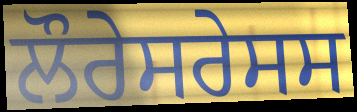
ਲੌਰੇਸਰੇਸਸ